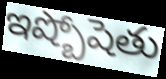
ఇష్బోషెతు